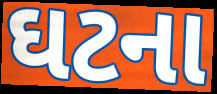
ઘટના